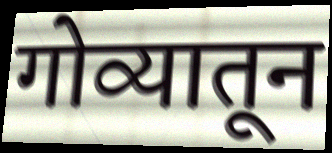
गोव्यातून